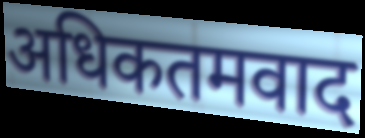
अधिकतमवाद